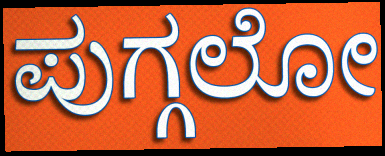
ಪುಗ್ಗಲೋ